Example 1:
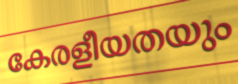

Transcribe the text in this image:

കേരളീയതയും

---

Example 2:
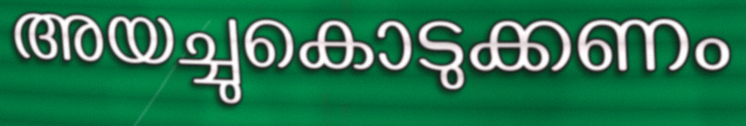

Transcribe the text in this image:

അയച്ചുകൊടുക്കണം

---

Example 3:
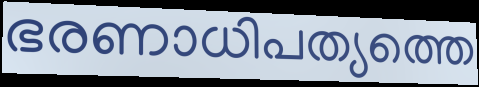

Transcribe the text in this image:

ഭരണാധിപത്യത്തെ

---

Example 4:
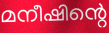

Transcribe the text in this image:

മനീഷിന്റെ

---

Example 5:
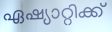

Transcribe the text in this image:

ഏഷ്യാറ്റിക്ക്